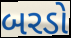
બરડો